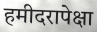
हमीदरापेक्षा